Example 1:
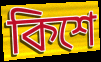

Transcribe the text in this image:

কিশে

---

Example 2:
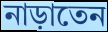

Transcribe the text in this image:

নাড়াতেন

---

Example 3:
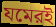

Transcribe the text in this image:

যমেরই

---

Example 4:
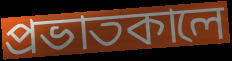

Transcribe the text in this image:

প্রভাতকালে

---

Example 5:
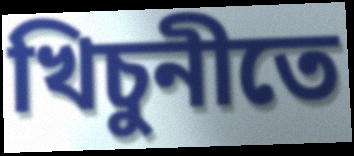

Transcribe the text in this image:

খিচুনীতে